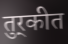
तुर्कीत